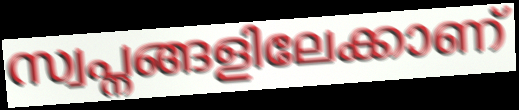
സ്വപ്നങ്ങളിലേക്കാണ്